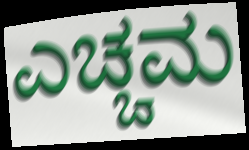
ಎಚ್ಚಮ